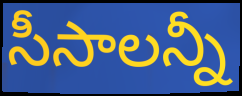
సీసాలన్నీ